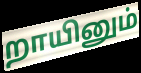
றாயினும்